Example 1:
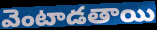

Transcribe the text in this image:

వెంటాడతాయి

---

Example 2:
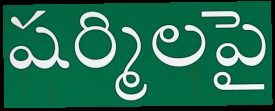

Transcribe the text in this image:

షర్మిలపై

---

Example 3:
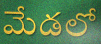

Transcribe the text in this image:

మేడలో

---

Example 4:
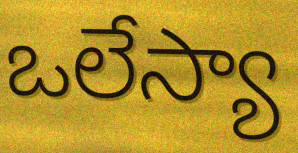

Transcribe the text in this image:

ఒలేస్యా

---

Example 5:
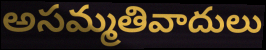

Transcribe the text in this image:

అసమ్మతివాదులు